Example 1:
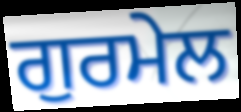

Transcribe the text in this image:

ਗੁਰਮੇਲ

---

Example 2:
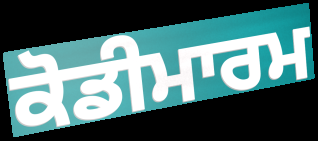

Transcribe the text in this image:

ਕੋਡੀਮਾਰਮ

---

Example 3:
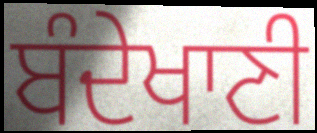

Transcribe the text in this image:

ਬੰਦੇਖਾਣੀ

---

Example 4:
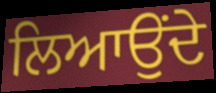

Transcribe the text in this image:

ਲਿਆਉੁਂਦੇ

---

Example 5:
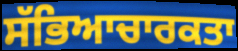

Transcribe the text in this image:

ਸੱਭਿਆਚਾਰਕਤਾ